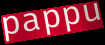
pappu